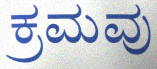
ಕ್ರಮವು